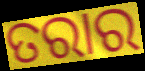
ତରାର